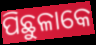
ପିଛୁଳାକେ